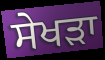
ਸੇਖੜਾ